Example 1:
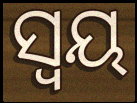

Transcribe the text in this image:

ସ୍ୱୟ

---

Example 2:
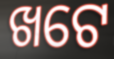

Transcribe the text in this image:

ଖଟେ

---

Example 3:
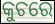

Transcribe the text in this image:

କୁଚରେ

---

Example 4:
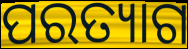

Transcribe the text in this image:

ପରତ୍ୟାଗ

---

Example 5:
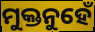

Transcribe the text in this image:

ମୁକ୍ତନୁହେଁ